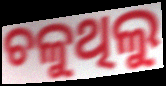
ଚଳୁଥିଲୁ